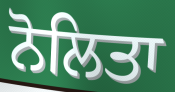
ਨੋਲਿਤਾ